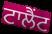
ਟਾਲੈਂਟ